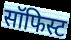
सॉफिस्ट